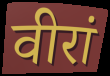
वीरां